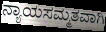
ನ್ಯಾಯಸಮ್ಮತವಾಗಿ